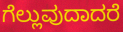
ಗೆಲ್ಲುವುದಾದರೆ